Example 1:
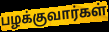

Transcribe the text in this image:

பழக்குவார்கள்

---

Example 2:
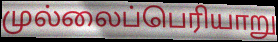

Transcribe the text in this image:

முல்லைப்பெரியாறு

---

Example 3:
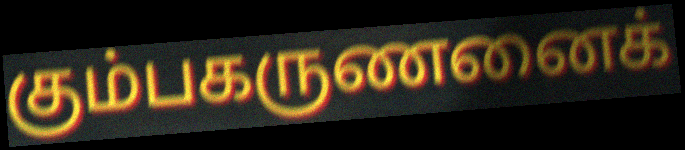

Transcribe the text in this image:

கும்பகருணனைக்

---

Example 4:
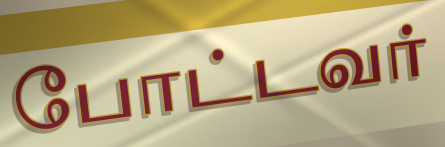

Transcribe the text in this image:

போட்டவர்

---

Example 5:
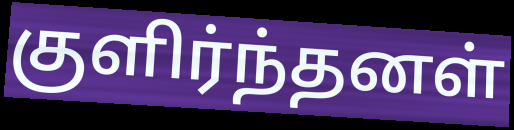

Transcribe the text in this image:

குளிர்ந்தனள்